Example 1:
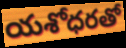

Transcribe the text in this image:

యశోధరతో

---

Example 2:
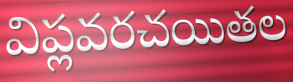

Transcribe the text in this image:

విప్లవరచయితల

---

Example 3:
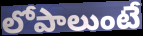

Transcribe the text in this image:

లోపాలుంటే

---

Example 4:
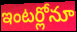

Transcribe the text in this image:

ఇంటర్లోనూ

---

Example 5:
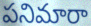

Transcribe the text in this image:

పనిమారా